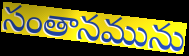
సంతానమును